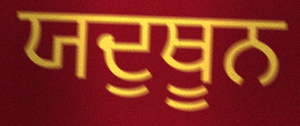
ਯਦੁਥੂਨ